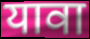
यावा